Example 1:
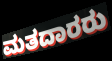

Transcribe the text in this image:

ಮತದಾರರು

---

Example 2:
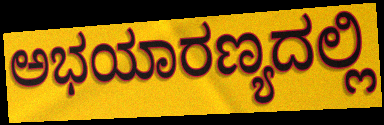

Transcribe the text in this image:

ಅಭಯಾರಣ್ಯದಲ್ಲಿ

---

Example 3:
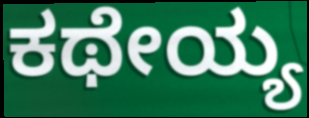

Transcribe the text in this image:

ಕಥೇಯ್ಯ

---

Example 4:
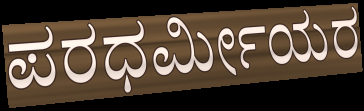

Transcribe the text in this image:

ಪರಧರ್ಮೀಯರ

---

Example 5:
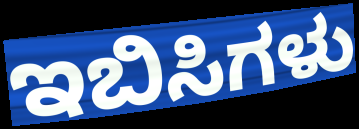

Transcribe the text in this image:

ಇಬಿಸಿಗಳು